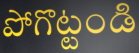
పోగొట్టండి